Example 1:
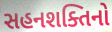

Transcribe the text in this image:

સહનશક્તિનો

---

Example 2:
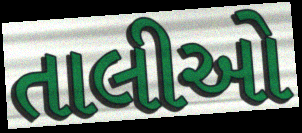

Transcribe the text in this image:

તાલીઓ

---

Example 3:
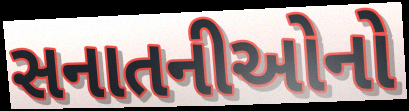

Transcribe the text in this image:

સનાતનીઓનો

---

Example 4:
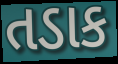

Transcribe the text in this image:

તડાક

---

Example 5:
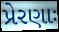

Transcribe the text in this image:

પ્રેરણાઃ